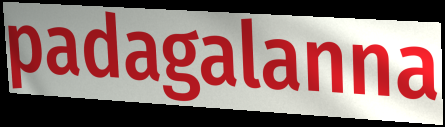
padagalanna